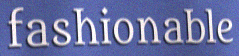
fashionable